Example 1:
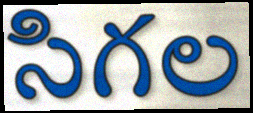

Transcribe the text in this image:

సిగల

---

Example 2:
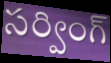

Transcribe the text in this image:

సర్వింగ్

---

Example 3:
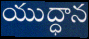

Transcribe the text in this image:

యుద్ధాన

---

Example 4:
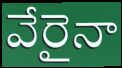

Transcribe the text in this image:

వేరైనా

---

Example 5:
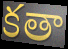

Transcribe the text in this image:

కతా